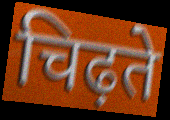
चिढ़ते